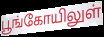
பூங்கோயிலுள்